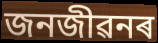
জনজীৱনৰ